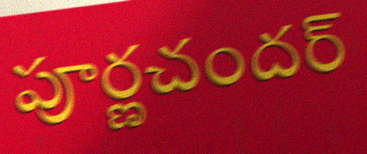
పూర్ణచందర్